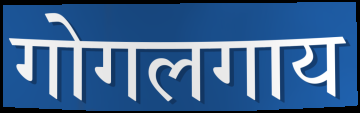
गोगलगाय